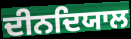
ਦੀਨਦਿਯਾਲ